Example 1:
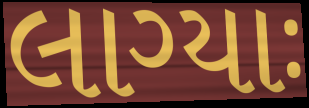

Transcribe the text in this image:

લાગ્યાઃ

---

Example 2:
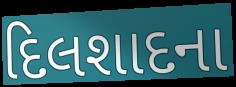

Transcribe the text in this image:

દિલશાદના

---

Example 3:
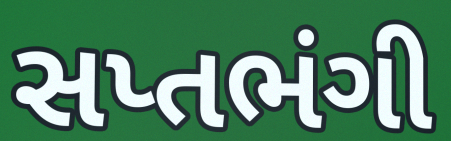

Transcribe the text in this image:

સપ્તભંગી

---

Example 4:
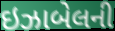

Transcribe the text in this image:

ઇઝાબેલની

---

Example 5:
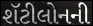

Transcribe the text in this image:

શૅટીલોનની